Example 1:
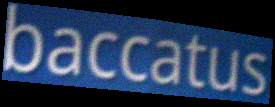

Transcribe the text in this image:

baccatus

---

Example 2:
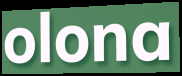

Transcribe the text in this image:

olona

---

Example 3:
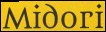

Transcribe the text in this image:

Midori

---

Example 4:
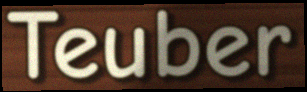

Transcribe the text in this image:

Teuber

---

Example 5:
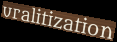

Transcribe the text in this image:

uralitization